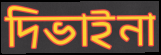
দিভাইনা